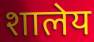
शालेय